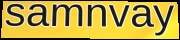
samnvay